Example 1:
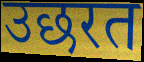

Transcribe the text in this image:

उछरत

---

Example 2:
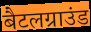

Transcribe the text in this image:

बैटलग्राउंड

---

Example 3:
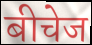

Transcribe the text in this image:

बीचेज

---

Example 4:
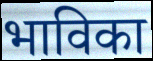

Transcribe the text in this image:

भाविका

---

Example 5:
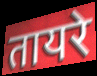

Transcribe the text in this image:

तायरे